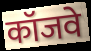
कॉजवे